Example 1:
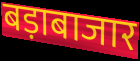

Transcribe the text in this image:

बड़ाबाजार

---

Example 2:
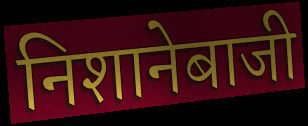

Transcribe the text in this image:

निशानेबाजी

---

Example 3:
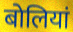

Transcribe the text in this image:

बोलियां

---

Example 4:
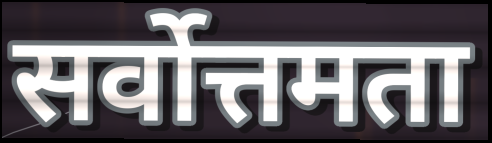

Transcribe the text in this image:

सर्वोत्तमता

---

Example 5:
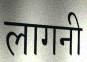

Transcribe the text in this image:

लागनी